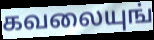
கவலையுங்